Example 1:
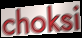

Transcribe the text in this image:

choksi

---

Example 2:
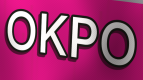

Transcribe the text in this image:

OKPO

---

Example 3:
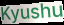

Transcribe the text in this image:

Kyushu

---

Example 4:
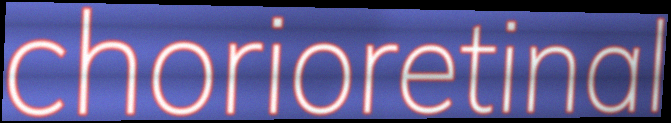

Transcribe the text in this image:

chorioretinal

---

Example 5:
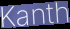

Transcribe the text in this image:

Kanth